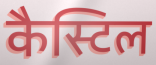
कैस्टिल